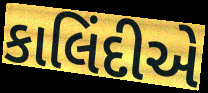
કાલિંદીએ